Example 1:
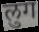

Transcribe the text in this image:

लुग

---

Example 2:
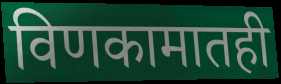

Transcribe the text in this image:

विणकामातही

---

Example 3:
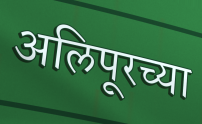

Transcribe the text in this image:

अलिपूरच्या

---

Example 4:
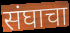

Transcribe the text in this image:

संघाचा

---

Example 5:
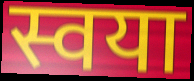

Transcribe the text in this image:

स्वया